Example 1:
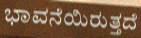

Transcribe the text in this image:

ಭಾವನೆಯಿರುತ್ತದೆ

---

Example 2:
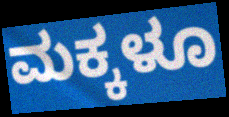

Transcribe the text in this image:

ಮಕ್ಕಳೂ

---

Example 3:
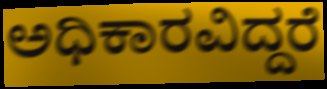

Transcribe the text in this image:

ಅಧಿಕಾರವಿದ್ದರೆ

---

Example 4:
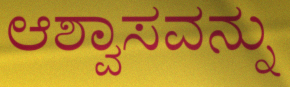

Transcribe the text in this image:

ಆಶ್ವಾಸವನ್ನು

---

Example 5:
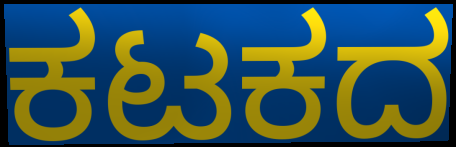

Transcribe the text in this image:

ಕಟಕದ